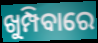
ଖୁମ୍ପିବାରେ